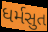
ધર્મસુત